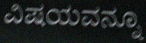
ವಿಷಯವನ್ನೂ